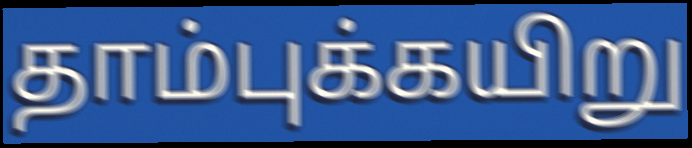
தாம்புக்கயிறு